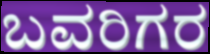
ಬವರಿಗರ